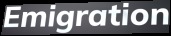
Emigration